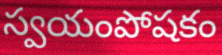
స్వయంపోషకం